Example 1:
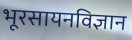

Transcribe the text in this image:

भूरसायनविज्ञान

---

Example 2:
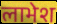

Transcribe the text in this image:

लाभेश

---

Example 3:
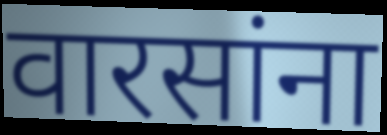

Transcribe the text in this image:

वारसांना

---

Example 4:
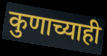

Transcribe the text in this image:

कुणाच्याही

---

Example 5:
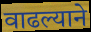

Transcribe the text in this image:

वाढल्याने